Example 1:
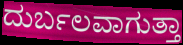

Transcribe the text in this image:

ದುರ್ಬಲವಾಗುತ್ತಾ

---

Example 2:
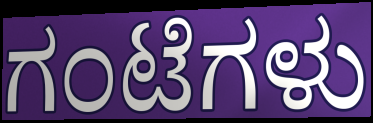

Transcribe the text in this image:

ಗಂಟೆಗಳು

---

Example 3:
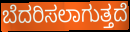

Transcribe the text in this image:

ಬೆದರಿಸಲಾಗುತ್ತದೆ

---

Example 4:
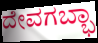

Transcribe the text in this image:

ದೇವಗಬ್ಭಾ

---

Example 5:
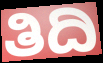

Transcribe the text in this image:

ತಿದಿ